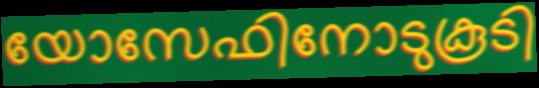
യോസേഫിനോടുകൂടി